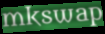
mkswap